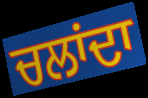
ਚਲਾਂਦਾ